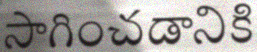
సాగించడానికి